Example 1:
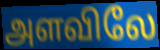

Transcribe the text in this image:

அளவிலே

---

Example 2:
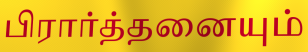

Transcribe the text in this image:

பிரார்த்தனையும்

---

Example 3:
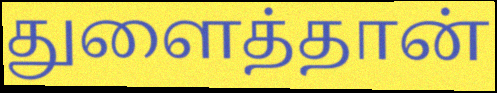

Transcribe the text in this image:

துளைத்தான்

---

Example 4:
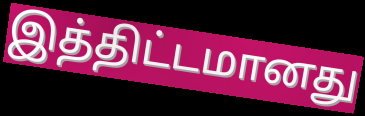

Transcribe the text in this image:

இத்திட்டமானது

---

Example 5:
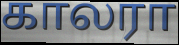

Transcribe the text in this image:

காலரா